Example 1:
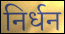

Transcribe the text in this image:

निर्धन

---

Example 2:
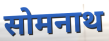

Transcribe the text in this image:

सोमनाथ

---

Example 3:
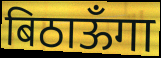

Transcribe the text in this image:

बिठाऊँगा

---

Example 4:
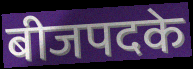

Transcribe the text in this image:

बीजपदके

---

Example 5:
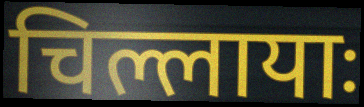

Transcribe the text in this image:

चिल्लायाः